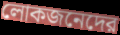
লোকজনেদের